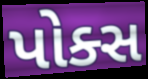
પોક્સ